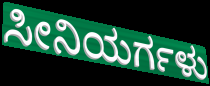
ಸೀನಿಯರ್ಗಳು